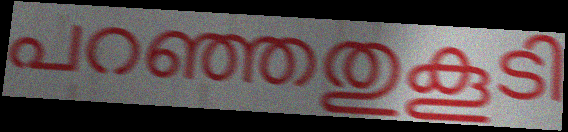
പറഞ്ഞതുകൂടി